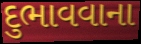
દુભાવવાના